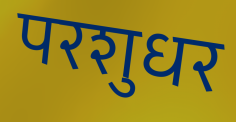
परशुधर